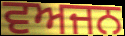
ਵਅਜਨ